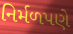
નિર્મળપણે